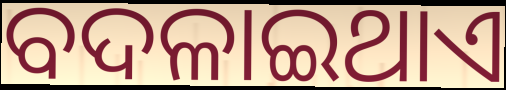
ବଦଳାଇଥାଏ